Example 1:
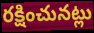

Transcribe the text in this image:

రక్షించునట్లు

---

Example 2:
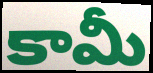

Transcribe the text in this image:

కామీ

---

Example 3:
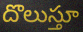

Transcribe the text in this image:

దొలుస్తూ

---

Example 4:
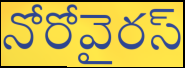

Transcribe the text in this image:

నోరోవైరస్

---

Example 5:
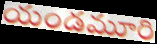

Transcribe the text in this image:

యండమూరి